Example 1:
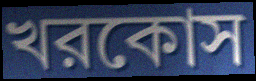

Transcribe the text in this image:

খরকোস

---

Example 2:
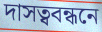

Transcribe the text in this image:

দাসত্ববন্ধনে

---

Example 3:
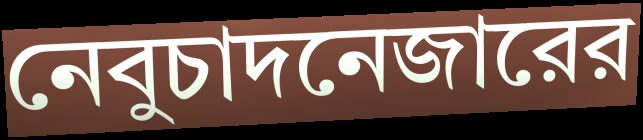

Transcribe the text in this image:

নেবুচাদনেজারের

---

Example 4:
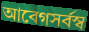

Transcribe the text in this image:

আবেগসর্বস্ব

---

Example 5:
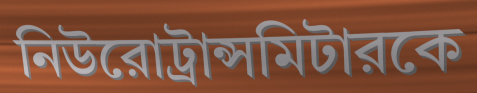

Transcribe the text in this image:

নিউরোট্রান্সমিটারকে